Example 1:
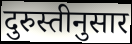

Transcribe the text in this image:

दुरुस्तीनुसार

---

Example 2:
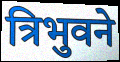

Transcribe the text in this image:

त्रिभुवने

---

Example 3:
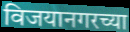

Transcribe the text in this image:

विजयानगरच्या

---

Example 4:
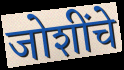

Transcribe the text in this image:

जोशींचे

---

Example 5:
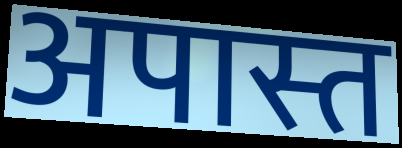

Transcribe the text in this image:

अपास्त